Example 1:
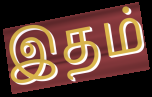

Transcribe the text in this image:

இதம்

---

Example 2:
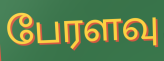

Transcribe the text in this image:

பேரளவு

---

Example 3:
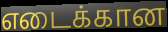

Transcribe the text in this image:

எடைக்கான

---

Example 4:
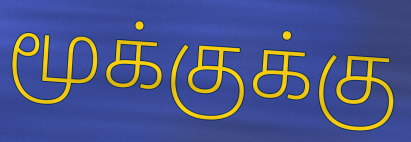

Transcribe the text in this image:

மூக்குக்கு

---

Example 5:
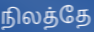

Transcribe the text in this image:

நிலத்தே